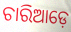
ଚାରିଆଡ଼େ